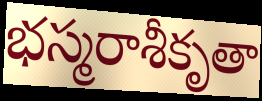
భస్మరాశీకృతా